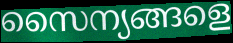
സൈന്യങ്ങളെ